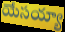
యేసయ్యా